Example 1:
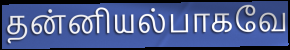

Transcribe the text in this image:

தன்னியல்பாகவே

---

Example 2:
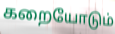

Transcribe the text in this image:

கறையோடும்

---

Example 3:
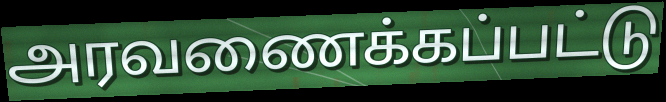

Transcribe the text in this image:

அரவணைக்கப்பட்டு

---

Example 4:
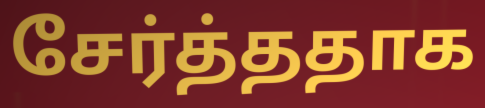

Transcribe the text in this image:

சேர்த்ததாக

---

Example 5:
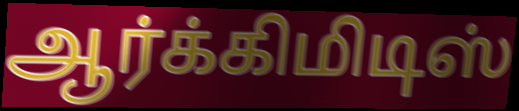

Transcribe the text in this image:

ஆர்க்கிமிடிஸ்